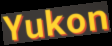
Yukon